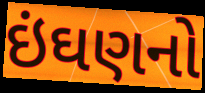
ઇંઘણનો